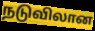
நடுவிலான